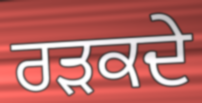
ਰੜਕਦੇ